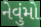
નેવુંમો